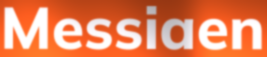
Messiaen